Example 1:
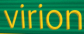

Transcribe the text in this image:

virion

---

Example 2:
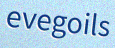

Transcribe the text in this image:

evegoils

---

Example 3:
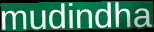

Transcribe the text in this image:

mudindha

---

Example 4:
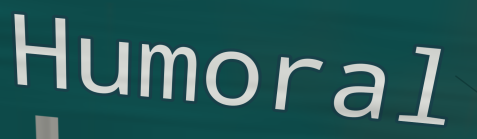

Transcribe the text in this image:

Humoral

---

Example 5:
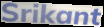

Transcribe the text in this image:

Srikant